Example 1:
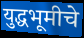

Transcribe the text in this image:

युद्धभूमीचे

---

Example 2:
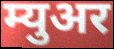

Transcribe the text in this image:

म्युअर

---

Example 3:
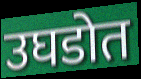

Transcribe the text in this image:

उघडोत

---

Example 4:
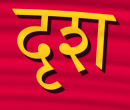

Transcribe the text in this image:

दृश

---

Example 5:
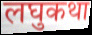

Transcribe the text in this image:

लघुकथा